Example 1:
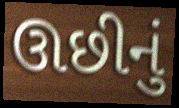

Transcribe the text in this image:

ઊછીનું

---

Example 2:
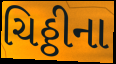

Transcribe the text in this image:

ચિઠ્ઠીના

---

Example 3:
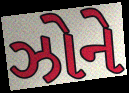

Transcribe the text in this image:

ઝોને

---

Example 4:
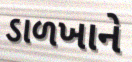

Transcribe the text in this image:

ડાળખાને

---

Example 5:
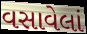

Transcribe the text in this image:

વસાવેલાં